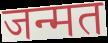
जन्मत